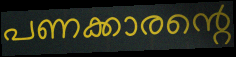
പണക്കാരന്റെ